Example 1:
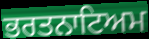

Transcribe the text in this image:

ਭਰਤਨਾਟਿਅਮ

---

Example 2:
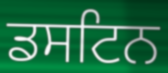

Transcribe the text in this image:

ਡਸਟਿਨ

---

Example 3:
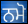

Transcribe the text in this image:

ਨਮੋ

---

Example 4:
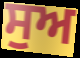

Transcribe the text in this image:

ਸੁਅ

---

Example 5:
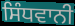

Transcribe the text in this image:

ਸਿੰਧਵਾਨੀ